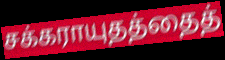
சக்கராயுதத்தைத்